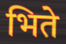
भिते